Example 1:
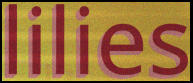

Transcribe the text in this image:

lilies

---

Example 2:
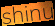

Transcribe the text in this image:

shinu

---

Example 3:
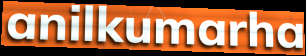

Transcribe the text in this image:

anilkumarha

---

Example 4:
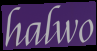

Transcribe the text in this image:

halwo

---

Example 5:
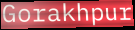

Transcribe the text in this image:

Gorakhpur